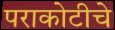
पराकोटीचे